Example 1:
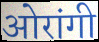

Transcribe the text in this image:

ओरांगी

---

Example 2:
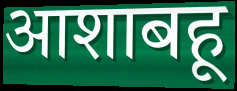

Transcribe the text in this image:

आशाबहू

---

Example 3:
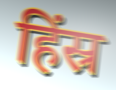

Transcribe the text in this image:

हिंस्र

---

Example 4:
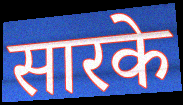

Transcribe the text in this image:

सारके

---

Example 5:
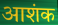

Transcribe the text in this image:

आशंक